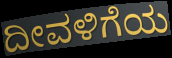
ದೀವಳಿಗೆಯ